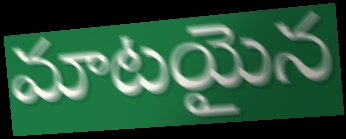
మాటయైన